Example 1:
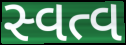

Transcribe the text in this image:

સ્વત્વ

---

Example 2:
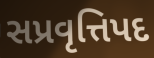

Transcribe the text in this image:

સપ્રવૃત્તિપદ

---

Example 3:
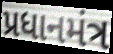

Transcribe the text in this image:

પ્રધાનમંત્ર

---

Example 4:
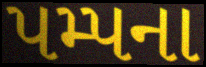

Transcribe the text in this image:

પમ્પના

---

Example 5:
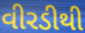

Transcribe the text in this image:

વીરડીથી